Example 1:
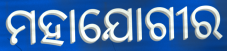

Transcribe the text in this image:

ମହାଯୋଗୀର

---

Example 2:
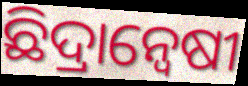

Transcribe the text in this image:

ଛିଦ୍ରାନ୍ୱେଷୀ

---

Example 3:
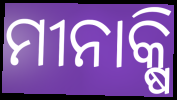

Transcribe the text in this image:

ମୀନାକ୍ଷି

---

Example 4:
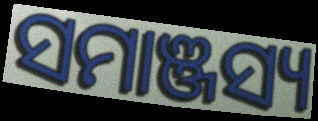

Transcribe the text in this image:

ସମାଞ୍ଜସ୍ୟ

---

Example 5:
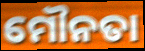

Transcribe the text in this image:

ମୌନତା